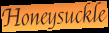
Honeysuckle